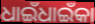
ଧାଇଁଧାଇଁକା